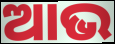
ଆଭ